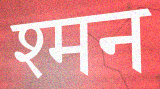
श्मन